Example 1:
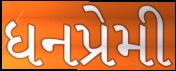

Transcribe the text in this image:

ધનપ્રેમી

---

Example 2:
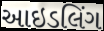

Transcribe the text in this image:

આઇડલિંગ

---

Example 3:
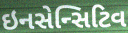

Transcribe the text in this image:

ઇનસેન્સિટિવ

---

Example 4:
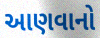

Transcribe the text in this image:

આણવાનો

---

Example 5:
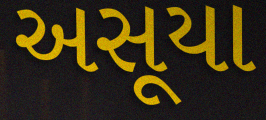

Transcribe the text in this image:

અસૂયા